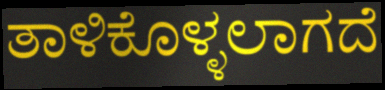
ತಾಳಿಕೊಳ್ಳಲಾಗದೆ